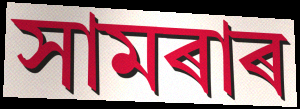
সামৰাৰ